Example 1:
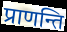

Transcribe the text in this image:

प्राणन्ति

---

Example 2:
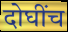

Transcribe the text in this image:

दोघींच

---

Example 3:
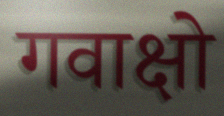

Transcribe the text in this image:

गवाक्षो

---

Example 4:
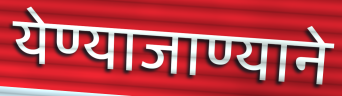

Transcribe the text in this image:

येण्याजाण्याने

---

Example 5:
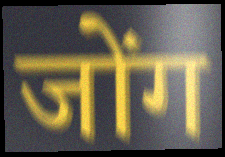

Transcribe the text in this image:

जोंग